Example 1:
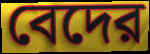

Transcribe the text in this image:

বেদের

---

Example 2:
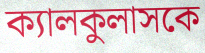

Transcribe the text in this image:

ক্যালকুলাসকে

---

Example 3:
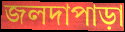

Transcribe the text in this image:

জলদাপাড়া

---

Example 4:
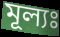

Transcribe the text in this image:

মূল্যঃ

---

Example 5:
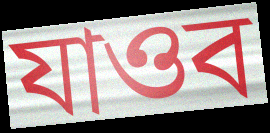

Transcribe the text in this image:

যাওব